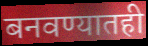
बनवण्यातही